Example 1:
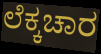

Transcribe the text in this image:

ಲೆಕ್ಕಚಾರ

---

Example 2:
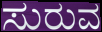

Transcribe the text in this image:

ಸುರುವ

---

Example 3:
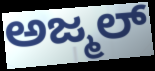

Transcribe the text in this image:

ಅಜ್ಮಲ್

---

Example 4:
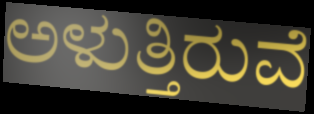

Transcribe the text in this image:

ಅಳುತ್ತಿರುವೆ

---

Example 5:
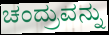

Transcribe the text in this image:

ಚಂದ್ರುವನ್ನು